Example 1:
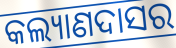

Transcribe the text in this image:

କଲ୍ୟାଣଦାସର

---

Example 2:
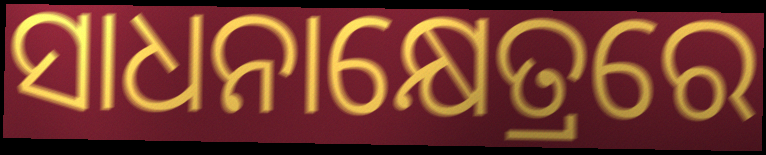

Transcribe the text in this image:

ସାଧନାକ୍ଷେତ୍ରରେ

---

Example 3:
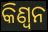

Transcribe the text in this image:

କିଣ୍ୱନ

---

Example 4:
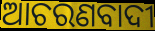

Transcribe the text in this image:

ଆଚରଣବାଦୀ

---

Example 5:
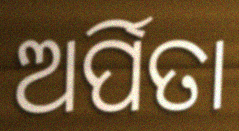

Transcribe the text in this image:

ଅର୍ପିତା